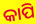
କାପି